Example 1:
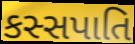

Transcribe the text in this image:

કસ્સપાતિ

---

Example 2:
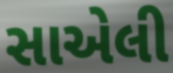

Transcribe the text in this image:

સાએલી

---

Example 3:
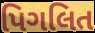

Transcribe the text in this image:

પિગલિત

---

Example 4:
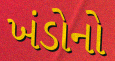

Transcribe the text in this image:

ખંડોનો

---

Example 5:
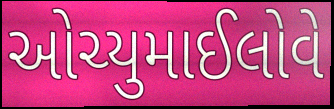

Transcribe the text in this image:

ઓચ્યુમાઈલોવે